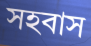
সহবাস